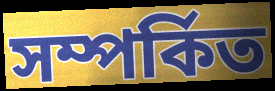
সম্পৰ্কিত